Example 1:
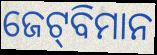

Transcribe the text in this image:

ଜେଟ୍‌ବିମାନ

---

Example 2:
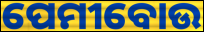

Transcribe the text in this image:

ପେମୀବୋଉ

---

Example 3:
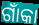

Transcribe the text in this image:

ଗାଁକା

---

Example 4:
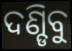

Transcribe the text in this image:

ଦଣ୍ଡିବୁ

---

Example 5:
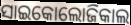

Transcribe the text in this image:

ସାଇକୋଲୋଜିକାଲ